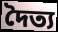
দৈত্য